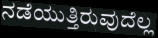
ನಡೆಯುತ್ತಿರುವುದೆಲ್ಲ